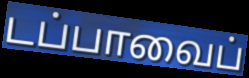
டப்பாவைப்